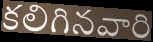
కలిగినవారి